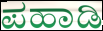
ಪಹಾಡಿ